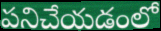
పనిచేయడంలో